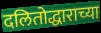
दलितोद्धाराच्या